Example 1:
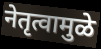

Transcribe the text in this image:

नेतृत्वामुळे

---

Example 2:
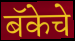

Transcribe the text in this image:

बॅकेचे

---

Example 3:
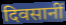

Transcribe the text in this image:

दिवसानीं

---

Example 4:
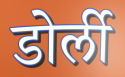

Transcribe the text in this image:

डोर्ली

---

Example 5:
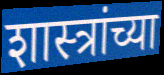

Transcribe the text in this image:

शास्त्रांच्या